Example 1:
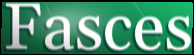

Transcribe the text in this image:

Fasces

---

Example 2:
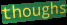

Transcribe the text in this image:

thoughs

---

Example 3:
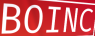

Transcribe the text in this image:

BOINC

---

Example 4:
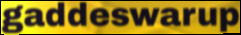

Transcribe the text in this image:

gaddeswarup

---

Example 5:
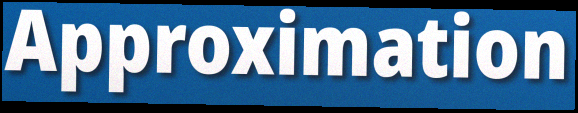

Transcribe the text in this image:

Approximation